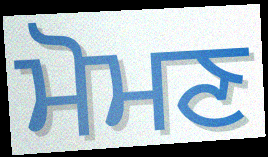
ਮੋਮਣ